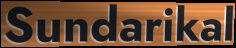
Sundarikal